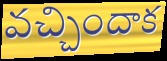
వచ్చిందాక